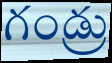
గండ్రు